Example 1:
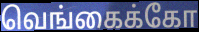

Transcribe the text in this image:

வெங்கைக்கோ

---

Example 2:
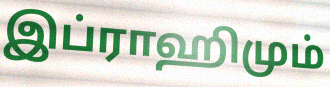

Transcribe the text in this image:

இப்ராஹிமும்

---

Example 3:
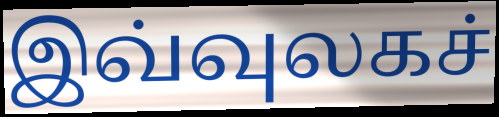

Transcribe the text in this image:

இவ்வுலகச்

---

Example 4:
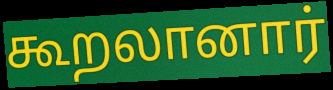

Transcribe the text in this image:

கூறலானார்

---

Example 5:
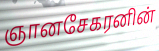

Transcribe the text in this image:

ஞானசேகரனின்